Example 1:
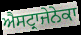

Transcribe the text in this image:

ਐਸਟ੍ਰਾਜੇਨੇਕਾ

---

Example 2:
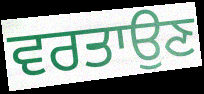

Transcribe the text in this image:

ਵਰਤਾਉਣ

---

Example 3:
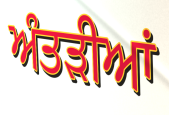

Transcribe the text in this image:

ਅੰਤੜੀਆਂ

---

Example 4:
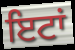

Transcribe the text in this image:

ਇਟਾਂ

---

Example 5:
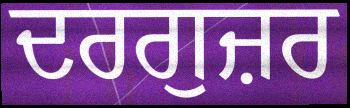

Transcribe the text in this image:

ਦਰਗੁਜ਼ਰ